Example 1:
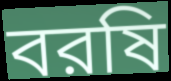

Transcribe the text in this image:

বরষি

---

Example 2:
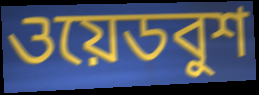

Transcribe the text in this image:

ওয়েডবুশ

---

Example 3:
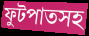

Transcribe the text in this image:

ফুটপাতসহ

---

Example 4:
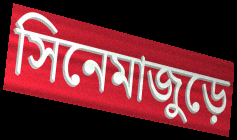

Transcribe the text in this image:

সিনেমাজুড়ে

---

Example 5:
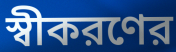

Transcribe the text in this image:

স্বীকরণের